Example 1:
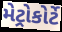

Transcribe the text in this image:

મેટ્રોકોર્ટે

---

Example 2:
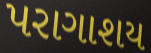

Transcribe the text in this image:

પરાગાશય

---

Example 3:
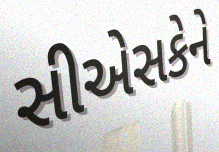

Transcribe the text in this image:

સીએસકેને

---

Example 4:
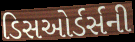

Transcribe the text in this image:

ડિસઓર્ડર્સની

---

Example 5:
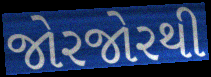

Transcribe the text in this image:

જોરજોરથી